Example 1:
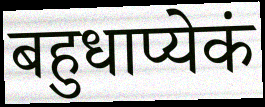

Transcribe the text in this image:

बहुधाप्येकं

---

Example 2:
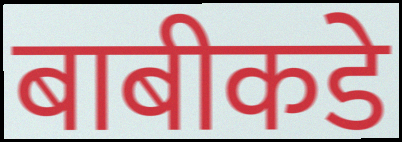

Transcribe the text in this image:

बाबीकडे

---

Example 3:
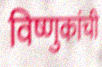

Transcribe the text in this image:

विष्णुकांची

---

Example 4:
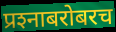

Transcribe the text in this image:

प्रश्‍नाबरोबरच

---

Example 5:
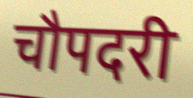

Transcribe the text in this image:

चौपदरी